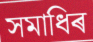
সমাধিৰ